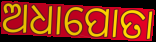
ଅଧାପୋତା